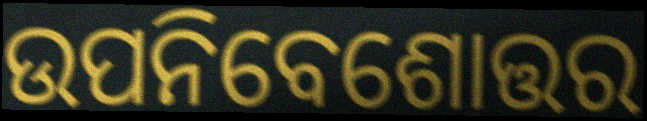
ଉପନିବେଶୋତ୍ତର